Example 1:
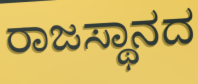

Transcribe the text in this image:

ರಾಜಸ್ಥಾನದ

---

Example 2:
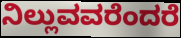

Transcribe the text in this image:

ನಿಲ್ಲುವವರೆಂದರೆ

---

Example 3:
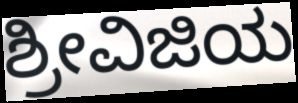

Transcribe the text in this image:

ಶ್ರೀವಿಜಿಯ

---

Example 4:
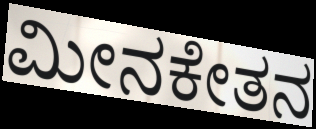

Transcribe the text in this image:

ಮೀನಕೇತನ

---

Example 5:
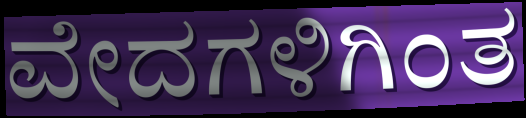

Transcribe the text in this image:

ವೇದಗಳಿಗಿಂತ